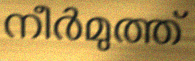
നീർമുത്ത്